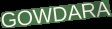
GOWDARA